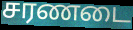
சரணடை